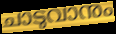
ചാടുവാനും